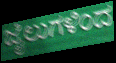
ಜೈಲುಗಳಿಂದ